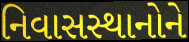
નિવાસસ્થાનોને